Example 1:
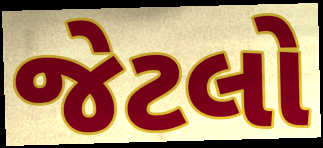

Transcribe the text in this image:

જેટલો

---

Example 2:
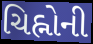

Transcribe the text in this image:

ચિહ્નોની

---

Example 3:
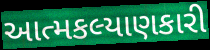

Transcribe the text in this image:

આત્મકલ્યાણકારી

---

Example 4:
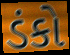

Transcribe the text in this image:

ડંકો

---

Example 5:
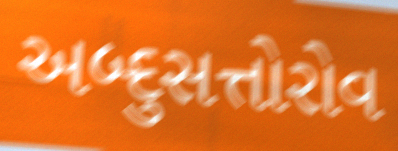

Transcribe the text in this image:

અબ્દુસત્તોરોવ